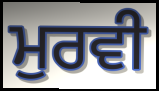
ਮੁਰਵੀ